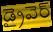
డ్రైవెర్